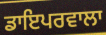
ਡਾਇਪਰਵਾਲਾ